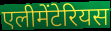
एलीमेंटेरियस